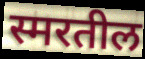
स्मरतील